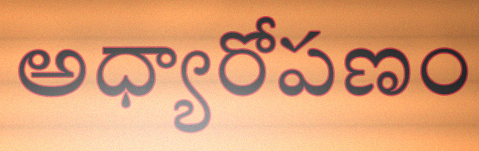
అధ్యారోపణం